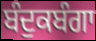
ਬੰਦੁਕਬੰਗਾ